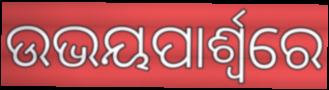
ଉଭୟପାର୍ଶ୍ବରେ